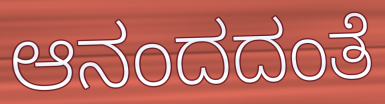
ಆನಂದದಂತೆ